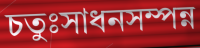
চতুঃসাধনসম্পন্ন